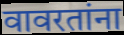
वावरतांना